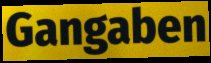
Gangaben